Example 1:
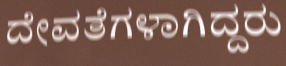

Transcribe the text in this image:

ದೇವತೆಗಳಾಗಿದ್ದರು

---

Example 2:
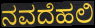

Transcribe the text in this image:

ನವದೆಹಲಿ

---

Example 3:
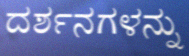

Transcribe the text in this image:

ದರ್ಶನಗಳನ್ನು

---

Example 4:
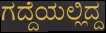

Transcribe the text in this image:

ಗದ್ದೆಯಲ್ಲಿದ್ದ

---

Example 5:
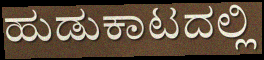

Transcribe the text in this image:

ಹುಡುಕಾಟದಲ್ಲಿ